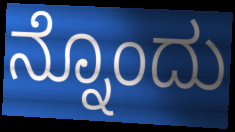
ನ್ನೊಂದು